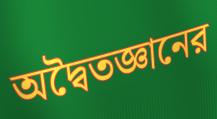
অদ্বৈতজ্ঞানের